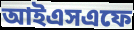
আইএসএফে